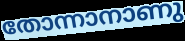
തോന്നാനാണു